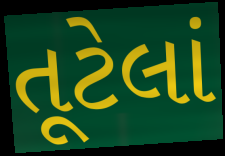
તૂટેલાં